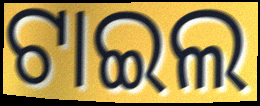
ଟାଇଲ